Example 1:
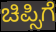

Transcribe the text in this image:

ಚಿಪ್ಸಿಗೆ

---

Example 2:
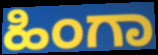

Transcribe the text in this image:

ಹಿಂಗಾ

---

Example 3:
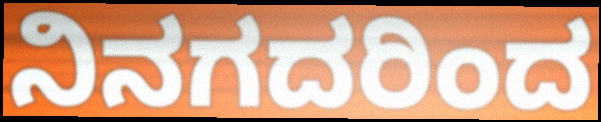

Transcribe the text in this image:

ನಿನಗದರಿಂದ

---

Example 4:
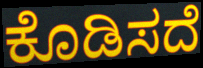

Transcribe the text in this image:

ಕೊಡಿಸದೆ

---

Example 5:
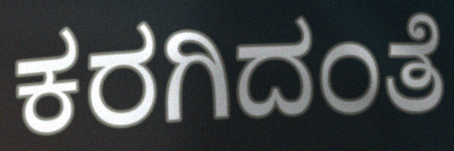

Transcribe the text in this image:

ಕರಗಿದಂತೆ